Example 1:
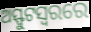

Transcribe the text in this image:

ଅସ୍ଫୁଟସ୍ୱରରେ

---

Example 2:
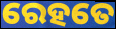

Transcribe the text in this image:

ରେହତେ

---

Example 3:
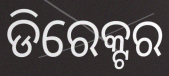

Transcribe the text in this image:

ଡିରେକ୍ଟର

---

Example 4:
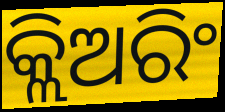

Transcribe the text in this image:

କ୍ଲିଅରିଂ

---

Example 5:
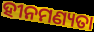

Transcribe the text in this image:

ହୀନମଣ୍ୟତା